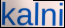
kalni